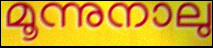
മൂന്നുനാലു